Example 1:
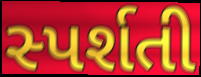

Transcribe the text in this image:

સ્પર્શતી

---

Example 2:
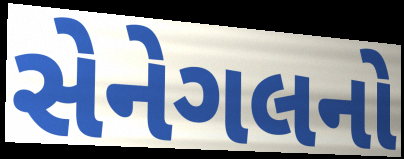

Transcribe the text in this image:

સેનેગલનો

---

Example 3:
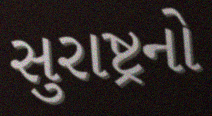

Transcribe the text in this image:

સુરાષ્ટ્રનો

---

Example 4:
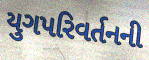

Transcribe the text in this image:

યુગપરિવર્તનની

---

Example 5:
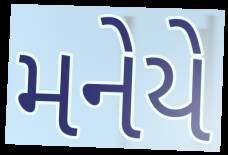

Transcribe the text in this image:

મનેયે